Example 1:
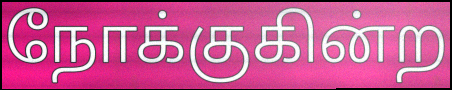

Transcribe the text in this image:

நோக்குகின்ற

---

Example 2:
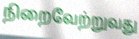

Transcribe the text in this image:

நிறைவேற்றுவது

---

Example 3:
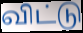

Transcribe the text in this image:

விட்டு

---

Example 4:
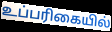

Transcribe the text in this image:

உப்பரிகையில்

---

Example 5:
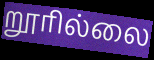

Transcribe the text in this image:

றூரில்லை